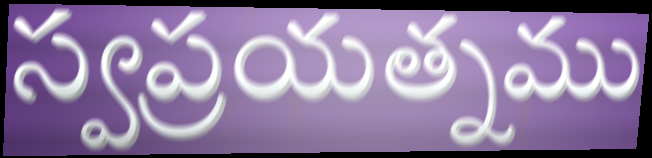
స్వప్రయత్నము